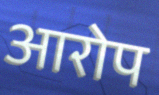
आरोप